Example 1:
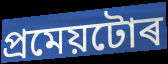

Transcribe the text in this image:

প্ৰমেয়টোৰ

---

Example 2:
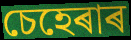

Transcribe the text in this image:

চেহেৰাৰ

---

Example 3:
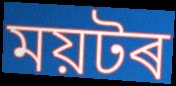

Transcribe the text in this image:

ময়টৰ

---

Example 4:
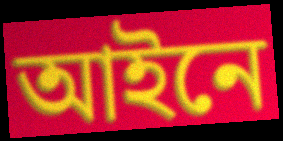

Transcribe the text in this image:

আইনে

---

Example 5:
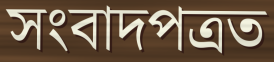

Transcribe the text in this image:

সংবাদপত্ৰত